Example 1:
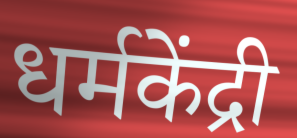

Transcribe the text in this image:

धर्मकेंद्री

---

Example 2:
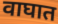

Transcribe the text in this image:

वाघात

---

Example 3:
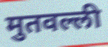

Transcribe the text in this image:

मुतवल्ली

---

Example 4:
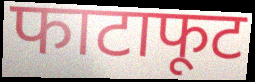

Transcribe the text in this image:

फाटाफूट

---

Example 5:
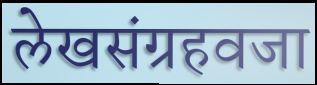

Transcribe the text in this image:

लेखसंग्रहवजा